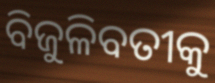
ବିଜୁଳିବତୀକୁ